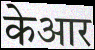
केआर